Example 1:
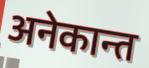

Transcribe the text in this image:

अनेकान्त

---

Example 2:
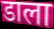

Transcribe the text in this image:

डाला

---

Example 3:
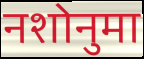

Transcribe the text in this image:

नशोनुमा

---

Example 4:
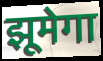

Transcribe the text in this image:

झूमेगा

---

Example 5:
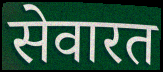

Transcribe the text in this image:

सेवारत